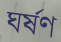
ঘর্ষণ